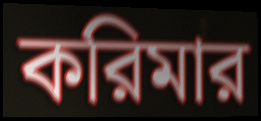
করিমার